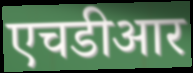
एचडीआर